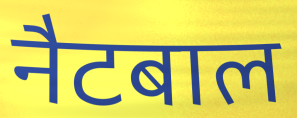
नैटबाल